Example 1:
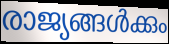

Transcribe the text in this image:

രാജ്യങ്ങൾക്കും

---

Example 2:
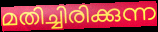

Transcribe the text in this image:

മതിച്ചിരിക്കുന്ന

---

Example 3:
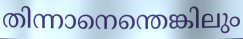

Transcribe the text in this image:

തിന്നാനെന്തെങ്കിലും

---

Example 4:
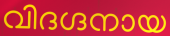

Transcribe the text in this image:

വിദഗ്ദനായ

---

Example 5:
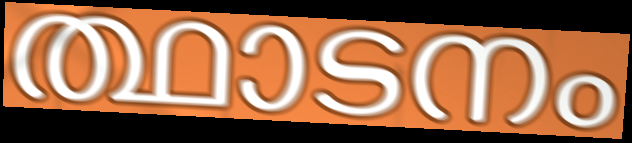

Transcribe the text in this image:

ത്ഥാടനം